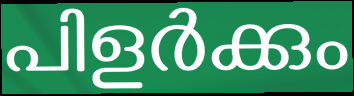
പിളർക്കും